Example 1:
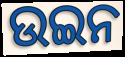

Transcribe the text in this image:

ଉଇନ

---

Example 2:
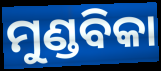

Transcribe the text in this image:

ମୁଣ୍ଡବିକା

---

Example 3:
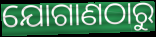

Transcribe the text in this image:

ଯୋଗାଣଠାରୁ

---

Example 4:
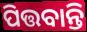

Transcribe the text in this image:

ପିତ୍ତବାନ୍ତି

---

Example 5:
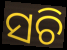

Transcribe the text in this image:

ସଚି